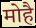
मोहै